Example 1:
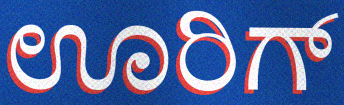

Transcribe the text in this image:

ಊರಿಗ್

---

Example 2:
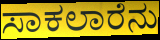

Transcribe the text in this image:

ಸಾಕಲಾರೆನು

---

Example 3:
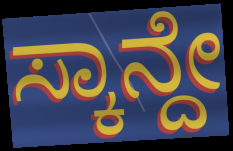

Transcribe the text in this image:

ಸ್ಕಾನ್ದೇ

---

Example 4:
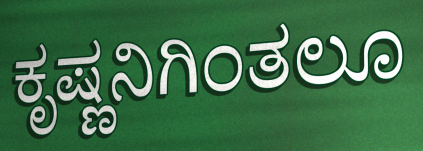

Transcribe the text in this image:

ಕೃಷ್ಣನಿಗಿಂತಲೂ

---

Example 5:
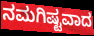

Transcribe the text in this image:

ನಮಗಿಷ್ಟವಾದ